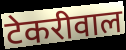
टेकरीवाल